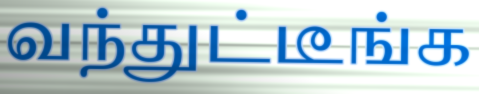
வந்துட்டீங்க